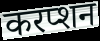
करप्शन